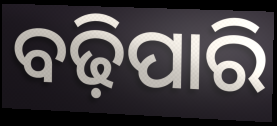
ବଢ଼ିପାରି